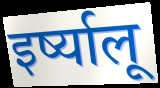
इर्ष्यालू